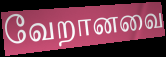
வேறானவை